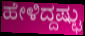
ಹೇಳಿದ್ದಷ್ಟು